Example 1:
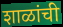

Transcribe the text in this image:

शाळांची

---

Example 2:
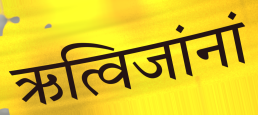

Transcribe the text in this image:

ऋत्विजांनां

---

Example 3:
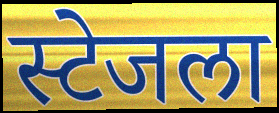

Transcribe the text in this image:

स्टेजला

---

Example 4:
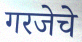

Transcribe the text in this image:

गरजेचे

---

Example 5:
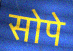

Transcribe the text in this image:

सोपे